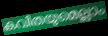
കവിതയുമെല്ലാം